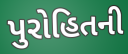
પુરોહિતની